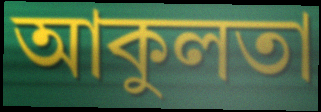
আকুলতা